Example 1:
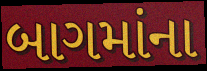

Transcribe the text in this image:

બાગમાંના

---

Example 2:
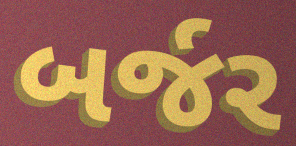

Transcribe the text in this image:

બર્જર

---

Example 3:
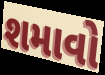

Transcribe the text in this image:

શમાવો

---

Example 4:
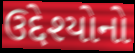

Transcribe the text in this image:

ઉદ્દેશ્યોનો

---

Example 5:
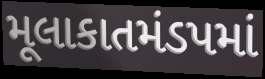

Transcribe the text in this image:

મૂલાકાતમંડપમાં